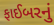
ફાઈબરનું